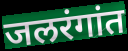
जलरंगांत